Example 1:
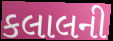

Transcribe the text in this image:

કલાલની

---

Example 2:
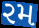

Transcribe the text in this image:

રમ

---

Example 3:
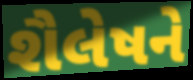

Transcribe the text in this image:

શૈલેષને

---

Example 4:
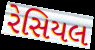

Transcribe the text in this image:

રેસિયલ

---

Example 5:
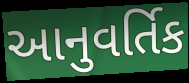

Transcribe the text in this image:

આનુવર્તિક